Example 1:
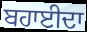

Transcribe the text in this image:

ਬਹਾਈਦਾ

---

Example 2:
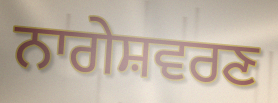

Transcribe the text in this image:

ਨਾਗੇਸ਼ਵਰਣ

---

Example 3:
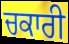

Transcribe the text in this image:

ਚਕਾਰੀ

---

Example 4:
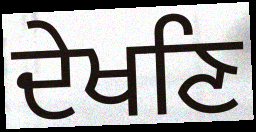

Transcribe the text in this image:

ਦੇਖਣਿ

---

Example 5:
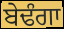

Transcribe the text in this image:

ਬੇਢੰਗਾ